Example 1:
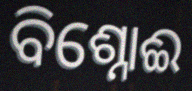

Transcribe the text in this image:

ବିଶ୍ନୋଈ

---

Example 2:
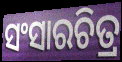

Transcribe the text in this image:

ସଂସାରଚିତ୍ର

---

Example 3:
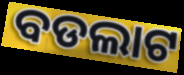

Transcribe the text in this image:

ବଡଲାଟ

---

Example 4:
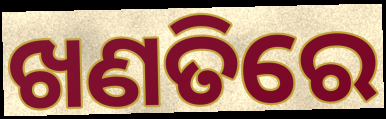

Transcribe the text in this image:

ଖଣତିରେ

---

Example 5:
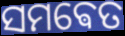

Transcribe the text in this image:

ସମଵେତ